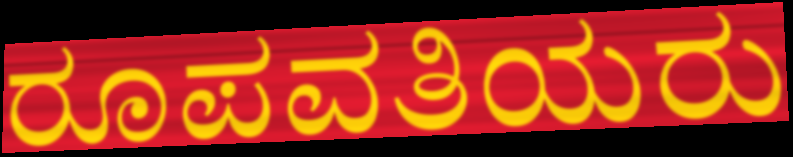
ರೂಪವತಿಯರು